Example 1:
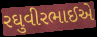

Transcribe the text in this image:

રઘુવીરભાઈએ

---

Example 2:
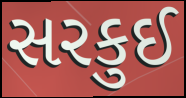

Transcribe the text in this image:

સરકુઈ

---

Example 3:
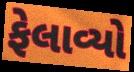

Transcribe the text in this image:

ફેલાવ્યો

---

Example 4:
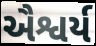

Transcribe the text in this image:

ઐશ્વર્ય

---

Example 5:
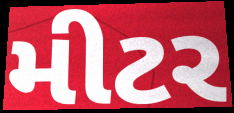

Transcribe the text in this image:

મીટર